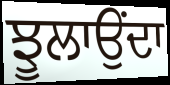
ਝੂਲਾਉਂਦਾ